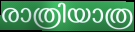
രാത്രിയാത്ര